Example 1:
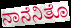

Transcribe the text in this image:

ನಾನೆನಿತೊ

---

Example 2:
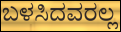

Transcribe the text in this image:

ಬಳಸಿದವರಲ್ಲ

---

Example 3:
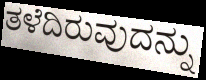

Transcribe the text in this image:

ತಳೆದಿರುವುದನ್ನು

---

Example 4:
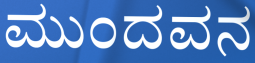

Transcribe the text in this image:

ಮುಂದವನ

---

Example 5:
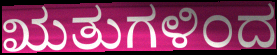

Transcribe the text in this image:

ಋತುಗಳಿಂದ